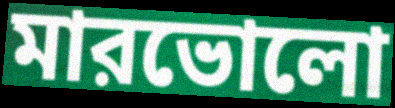
মারভোলো